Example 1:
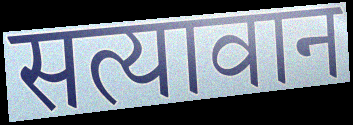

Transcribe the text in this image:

सत्यावान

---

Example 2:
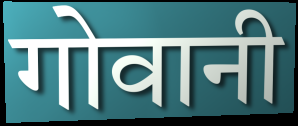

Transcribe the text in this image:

गोवानी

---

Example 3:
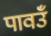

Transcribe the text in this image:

पावउँ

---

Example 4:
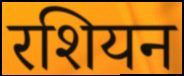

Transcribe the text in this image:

रशियन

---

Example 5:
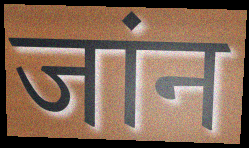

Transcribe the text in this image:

जांन